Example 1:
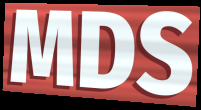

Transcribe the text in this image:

MDS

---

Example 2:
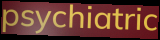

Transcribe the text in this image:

psychiatric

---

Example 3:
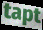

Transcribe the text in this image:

tapt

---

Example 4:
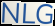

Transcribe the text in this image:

NLG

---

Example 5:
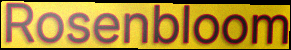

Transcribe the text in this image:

Rosenbloom